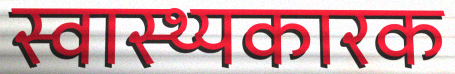
स्वास्थ्यकारक